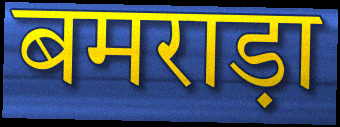
बमराड़ा